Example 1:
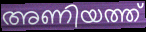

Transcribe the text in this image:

അണിയത്ത്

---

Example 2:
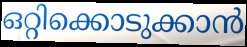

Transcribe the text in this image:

ഒറ്റിക്കൊടുക്കാൻ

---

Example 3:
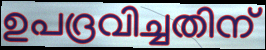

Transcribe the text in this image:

ഉപദ്രവിച്ചതിന്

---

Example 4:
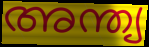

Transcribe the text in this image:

അന്ത്യ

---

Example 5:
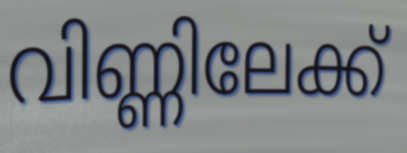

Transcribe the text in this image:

വിണ്ണിലേക്ക്